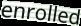
enrolled